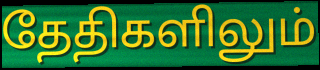
தேதிகளிலும்